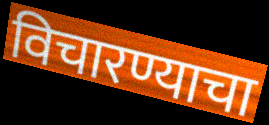
विचारण्याचा